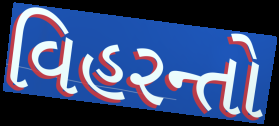
વિહરન્તો